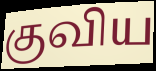
குவிய